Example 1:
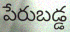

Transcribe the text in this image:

పేరుబడ్డ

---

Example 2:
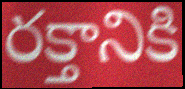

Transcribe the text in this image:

రక్తానికి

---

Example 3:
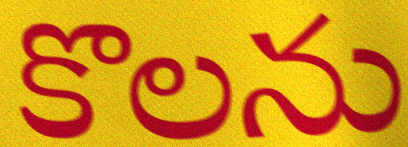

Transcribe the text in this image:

కొలను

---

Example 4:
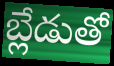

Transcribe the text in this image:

బ్లేడుతో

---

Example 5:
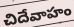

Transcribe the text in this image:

చిదేవాహం